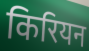
किरियन